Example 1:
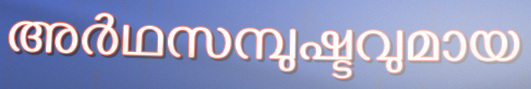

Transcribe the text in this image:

അർഥസമ്പുഷ്ടവുമായ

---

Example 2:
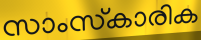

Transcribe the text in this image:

സാംസ്‌കാരിക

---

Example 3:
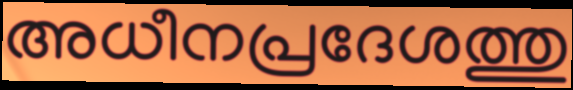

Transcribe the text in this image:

അധീനപ്രദേശത്തു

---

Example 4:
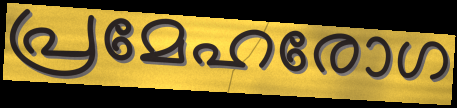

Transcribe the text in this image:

പ്രമേഹരോഗ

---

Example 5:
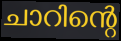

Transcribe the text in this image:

ചാറിന്റെ